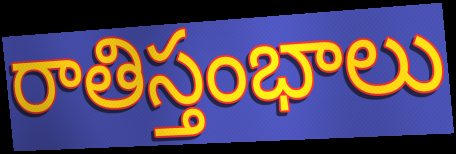
రాతిస్తంభాలు